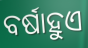
ବର୍ଷାହୁଏ